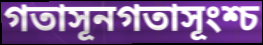
গতাসূনগতাসূংশ্চ